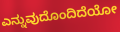
ಎನ್ನುವುದೊಂದಿದೆಯೋ